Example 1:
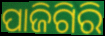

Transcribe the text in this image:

ପାଜିଗିରି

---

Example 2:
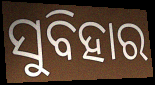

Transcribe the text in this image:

ସୁବିହାର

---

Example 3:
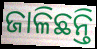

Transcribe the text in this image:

ଜାଳିଛନ୍ତି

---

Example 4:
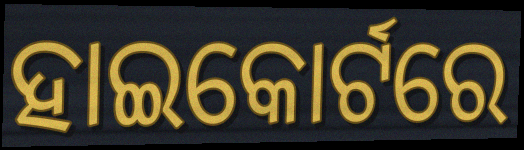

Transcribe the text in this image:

ହାଇକୋର୍ଟରେ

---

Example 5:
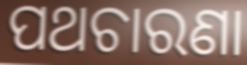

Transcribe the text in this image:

ପଥଚାରଣା